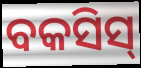
ବକସିସ୍